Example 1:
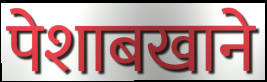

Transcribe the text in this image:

पेशाबखाने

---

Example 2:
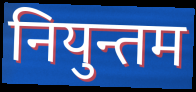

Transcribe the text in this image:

नियुन्तम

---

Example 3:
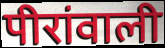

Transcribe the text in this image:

पीरांवाली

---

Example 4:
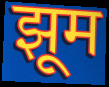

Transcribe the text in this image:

झूम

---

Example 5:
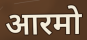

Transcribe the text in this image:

आरमो